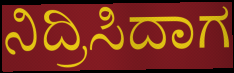
ನಿದ್ರಿಸಿದಾಗ